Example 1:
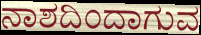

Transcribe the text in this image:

ನಾಶದಿಂದಾಗುವ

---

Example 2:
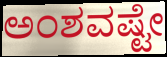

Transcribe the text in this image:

ಅಂಶವಷ್ಟೇ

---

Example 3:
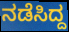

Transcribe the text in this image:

ನಡೆಸಿದ್ದ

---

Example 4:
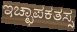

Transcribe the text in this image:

ಇಚ್ಛಾಪಕತಸ್ಸ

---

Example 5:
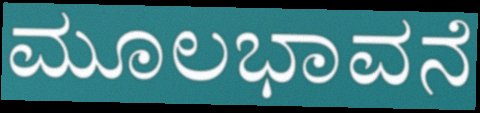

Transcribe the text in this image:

ಮೂಲಭಾವನೆ